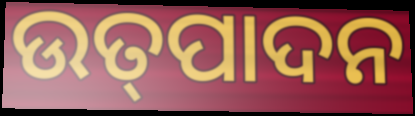
ଉତ୍‍ପାଦନ